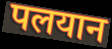
पलयान